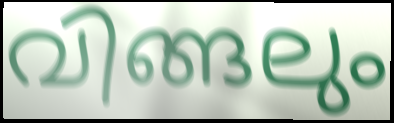
വിങ്ങലും